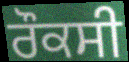
ਰੌਕਸੀ